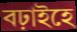
বঢ়াইহে